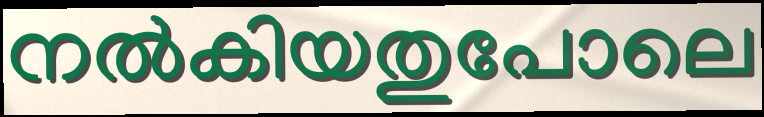
നൽകിയതുപോലെ